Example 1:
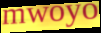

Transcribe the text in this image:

mwoyo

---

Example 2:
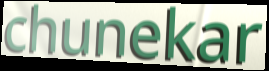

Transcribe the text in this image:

chunekar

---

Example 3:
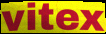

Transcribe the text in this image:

vitex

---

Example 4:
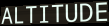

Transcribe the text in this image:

ALTITUDE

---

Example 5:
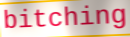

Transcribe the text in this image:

bitching